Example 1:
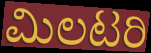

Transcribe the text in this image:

ಮಿಲಟರಿ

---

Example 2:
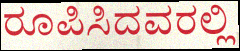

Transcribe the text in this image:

ರೂಪಿಸಿದವರಲ್ಲಿ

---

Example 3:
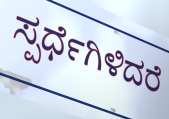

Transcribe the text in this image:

ಸ್ಪರ್ಧೆಗಿಳಿದರೆ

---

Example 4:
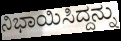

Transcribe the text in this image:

ನಿಭಾಯಿಸಿದ್ದನ್ನು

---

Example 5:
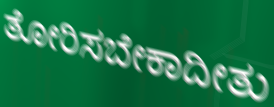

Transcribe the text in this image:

ತೋರಿಸಬೇಕಾದೀತು